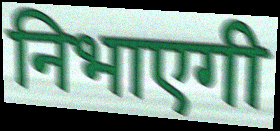
निभाएगी